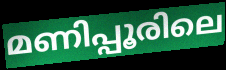
മണിപ്പൂരിലെ